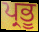
ਪ੍ਰਭੂ